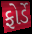
ફોર્ડે